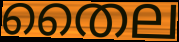
തൈല